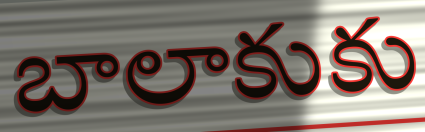
బాలాకుకు